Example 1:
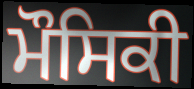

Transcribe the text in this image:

ਮੌਸਿਕੀ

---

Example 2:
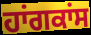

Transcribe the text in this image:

ਹਾਂਗਕਾਂਸ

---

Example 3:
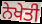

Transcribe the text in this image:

ਨੇਖੇਤੀ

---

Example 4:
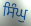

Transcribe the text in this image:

ਸਿੰਘੁ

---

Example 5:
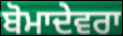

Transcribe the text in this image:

ਬੋਮਾਦੇਵਰਾ